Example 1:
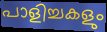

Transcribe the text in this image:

പാളിച്ചകളും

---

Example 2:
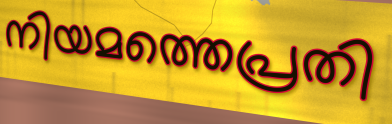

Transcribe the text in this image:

നിയമത്തെപ്രതി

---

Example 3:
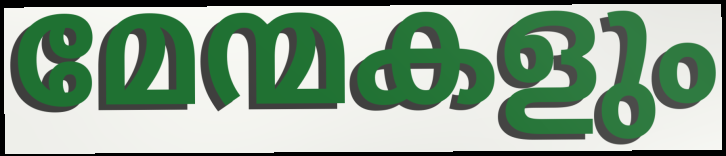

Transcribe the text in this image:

മേന്മകളും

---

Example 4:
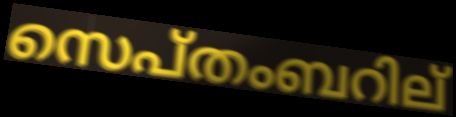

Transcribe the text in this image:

സെപ്തംബറില്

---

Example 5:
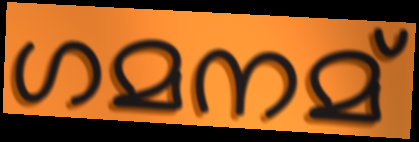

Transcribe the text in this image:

ഗമനമ്